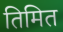
तिमित